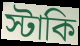
স্টাকি